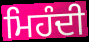
ਮਿਹੰਦੀ